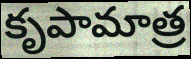
కృపామాత్ర